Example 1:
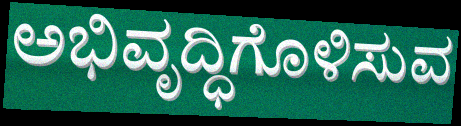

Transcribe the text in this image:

ಅಭಿವೃದ್ಧಿಗೊಳಿಸುವ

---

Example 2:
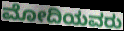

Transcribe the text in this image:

ಮೋದಿಯವರು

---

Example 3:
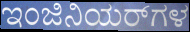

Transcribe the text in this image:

ಇಂಜಿನಿಯರ್‌ಗಳ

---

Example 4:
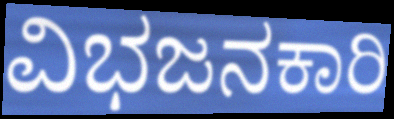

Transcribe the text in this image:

ವಿಭಜನಕಾರಿ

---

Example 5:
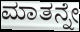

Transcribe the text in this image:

ಮಾತನ್ನೇ